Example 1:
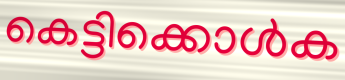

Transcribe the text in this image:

കെട്ടിക്കൊൾക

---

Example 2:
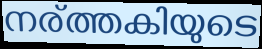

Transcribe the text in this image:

നര്ത്തകിയുടെ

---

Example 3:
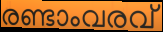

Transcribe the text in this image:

രണ്ടാംവരവ്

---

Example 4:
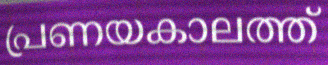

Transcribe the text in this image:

പ്രണയകാലത്ത്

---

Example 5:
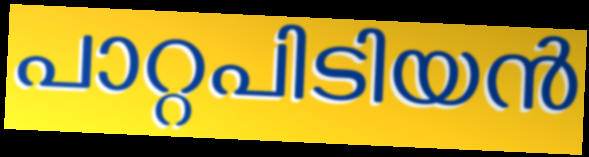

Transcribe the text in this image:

പാറ്റപിടിയൻ